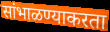
सांभाळण्याकरता